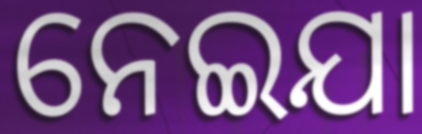
ନେଇଯା